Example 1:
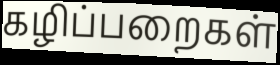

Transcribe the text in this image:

கழிப்பறைகள்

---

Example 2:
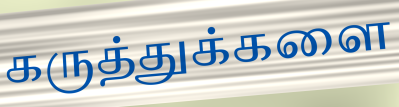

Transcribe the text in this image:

கருத்துக்களை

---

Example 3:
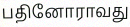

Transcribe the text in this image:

பதினோராவது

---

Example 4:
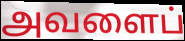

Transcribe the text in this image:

அவளைப்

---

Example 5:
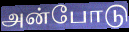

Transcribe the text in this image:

அன்போடு